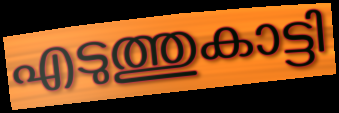
എടുത്തുകാട്ടി